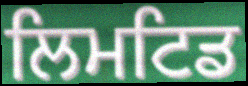
ਲਿਮਟਿਡ